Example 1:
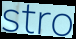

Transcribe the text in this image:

stro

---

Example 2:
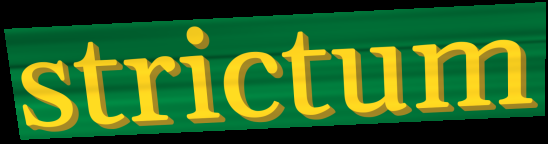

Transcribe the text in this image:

strictum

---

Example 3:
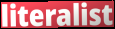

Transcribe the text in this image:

literalist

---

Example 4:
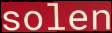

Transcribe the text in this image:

solen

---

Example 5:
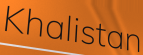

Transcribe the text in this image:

Khalistan